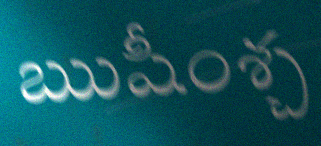
ఋషీంశ్చ